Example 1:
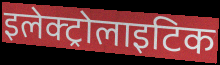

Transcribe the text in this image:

इलेक्ट्रोलाइटिक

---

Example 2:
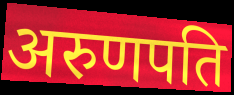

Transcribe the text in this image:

अरुणपति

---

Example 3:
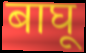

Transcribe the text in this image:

बाघू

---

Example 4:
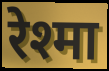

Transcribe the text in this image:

रेश्मा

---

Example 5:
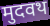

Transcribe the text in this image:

मुदवथ